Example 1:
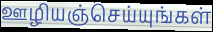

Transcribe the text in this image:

ஊழியஞ்செய்யுங்கள்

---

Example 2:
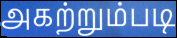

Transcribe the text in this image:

அகற்றும்படி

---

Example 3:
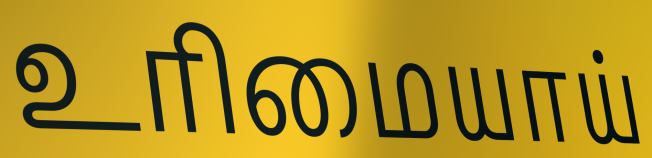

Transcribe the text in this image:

உரிமையாய்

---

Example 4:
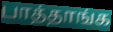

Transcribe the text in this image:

பாத்தாங்க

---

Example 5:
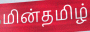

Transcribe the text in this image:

மின்தமிழ்